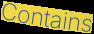
Contains